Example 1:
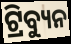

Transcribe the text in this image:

ଟ୍ରିବ୍ୟୁନ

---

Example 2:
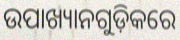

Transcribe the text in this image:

ଉପାଖ୍ୟାନଗୁଡ଼ିକରେ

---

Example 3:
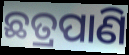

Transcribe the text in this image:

ଛତ୍ରପାଣି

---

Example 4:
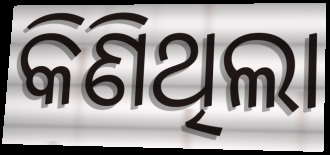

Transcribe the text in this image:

କିଣିଥିଲା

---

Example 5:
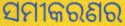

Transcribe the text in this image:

ସମୀକରଣର